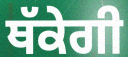
ਥੱਕੇਗੀ